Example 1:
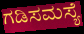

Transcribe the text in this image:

ಗಡಿಸಮಸ್ಯೆ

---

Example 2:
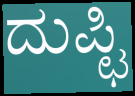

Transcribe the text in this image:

ದುಪ್ಟಿ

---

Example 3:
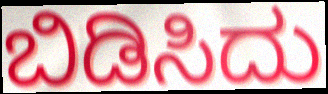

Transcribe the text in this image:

ಬಿಡಿಸಿದು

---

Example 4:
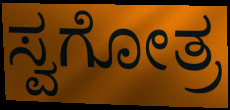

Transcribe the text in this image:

ಸ್ವಗೋತ್ರ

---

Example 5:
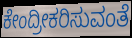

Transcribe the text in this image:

ಕೇಂದ್ರೀಕರಿಸುವಂತೆ